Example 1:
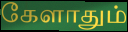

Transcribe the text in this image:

கேளாதும்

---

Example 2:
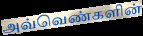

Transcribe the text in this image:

அவ்வெண்களின்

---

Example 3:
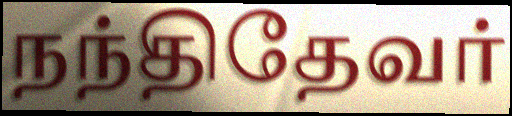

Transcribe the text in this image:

நந்திதேவர்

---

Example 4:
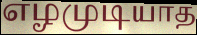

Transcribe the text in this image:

எழமுடியாத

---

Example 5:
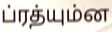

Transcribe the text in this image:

ப்ரத்யும்ன